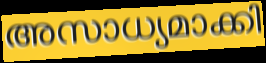
അസാധ്യമാക്കി